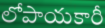
లోపాయకారీ